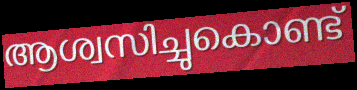
ആശ്വസിച്ചുകൊണ്ട്